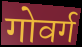
गोवर्ग